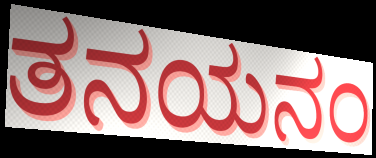
ತನಯನಂ